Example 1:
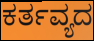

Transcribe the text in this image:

ಕರ್ತವ್ಯದ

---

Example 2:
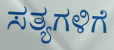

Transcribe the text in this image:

ಸತ್ಯಗಳಿಗೆ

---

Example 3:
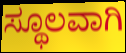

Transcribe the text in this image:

ಸ್ಥೂಲವಾಗಿ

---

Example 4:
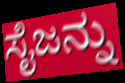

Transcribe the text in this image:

ಸೈಜನ್ನು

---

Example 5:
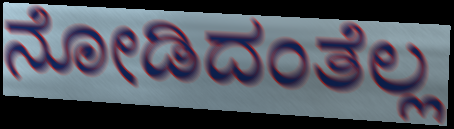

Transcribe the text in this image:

ನೋಡಿದಂತೆಲ್ಲ